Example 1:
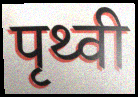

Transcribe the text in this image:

पृथ्वी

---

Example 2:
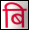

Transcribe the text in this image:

बि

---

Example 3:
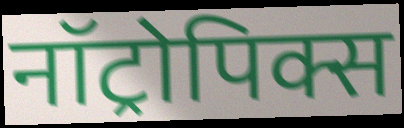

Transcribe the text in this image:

नॉट्रोपिक्स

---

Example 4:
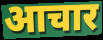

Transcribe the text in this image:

आचार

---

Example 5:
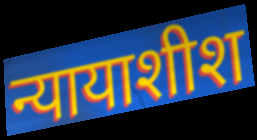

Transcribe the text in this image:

न्यायाशीश